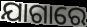
ଯାଗାରେ